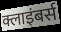
क्लाइंबर्स